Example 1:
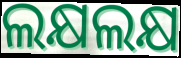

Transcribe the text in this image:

ଲକ୍ଷଲକ୍ଷ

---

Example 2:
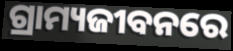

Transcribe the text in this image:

ଗ୍ରାମ୍ୟଜୀବନରେ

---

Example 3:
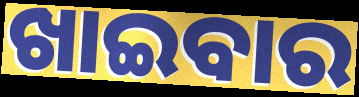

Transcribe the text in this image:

ଖାଇବାର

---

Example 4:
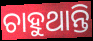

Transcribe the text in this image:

ଚାହୁଥାନ୍ତି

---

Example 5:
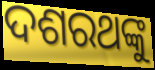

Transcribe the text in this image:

ଦଶରଥଙ୍କୁ